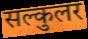
सल्कुलर